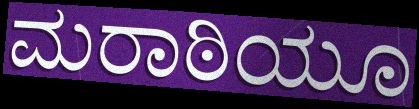
ಮರಾಠಿಯೂ